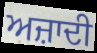
ਅਜ਼ਾਦੀ